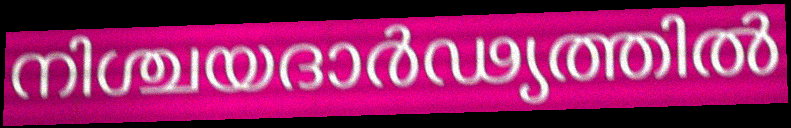
നിശ്ചയദാർഢ്യത്തിൽ